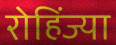
रोहिंज्या